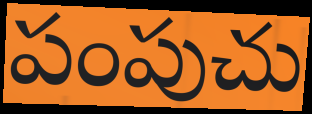
పంపుచు